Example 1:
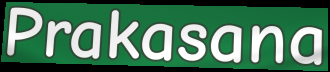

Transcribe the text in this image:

Prakasana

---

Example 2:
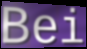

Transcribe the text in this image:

Bei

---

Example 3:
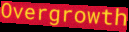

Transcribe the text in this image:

Overgrowth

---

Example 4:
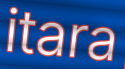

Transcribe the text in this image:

itara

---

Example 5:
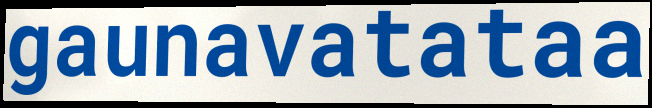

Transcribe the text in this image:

gaunavatataa